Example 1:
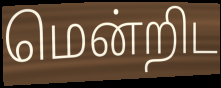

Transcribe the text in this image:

மென்றிட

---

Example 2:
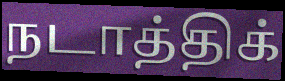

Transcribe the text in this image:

நடாத்திக்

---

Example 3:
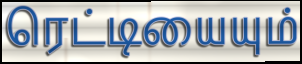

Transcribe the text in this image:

ரெட்டியையும்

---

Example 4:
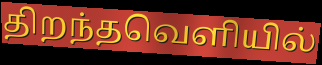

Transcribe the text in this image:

திறந்தவெளியில்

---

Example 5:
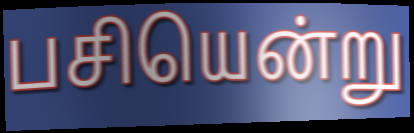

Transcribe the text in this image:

பசியென்று